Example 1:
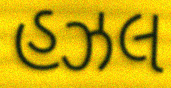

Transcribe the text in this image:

હઝલ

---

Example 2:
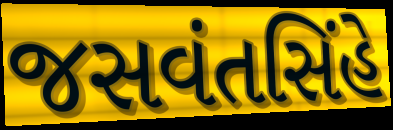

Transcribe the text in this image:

જસવંતસિંહે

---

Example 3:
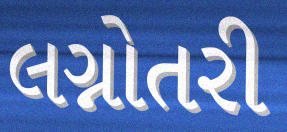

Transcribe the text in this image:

લગ્નોતરી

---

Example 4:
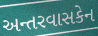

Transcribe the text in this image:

અન્તરવાસકેન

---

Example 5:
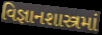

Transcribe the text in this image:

વિજ્ઞાનશાસ્ત્રમાં